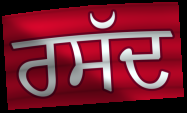
ਰਸੱਦ